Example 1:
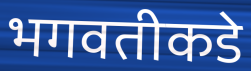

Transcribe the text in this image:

भगवतीकडे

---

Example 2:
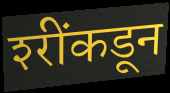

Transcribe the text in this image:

श्रींकडून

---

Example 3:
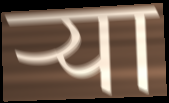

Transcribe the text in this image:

ऱ्या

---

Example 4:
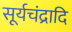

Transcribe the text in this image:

सूर्यचंद्रादि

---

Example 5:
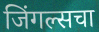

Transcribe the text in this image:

जिंगल्सचा